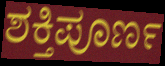
ಶಕ್ತಿಪೂರ್ಣ